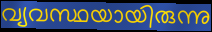
വ്യവസ്ഥയായിരുന്നു